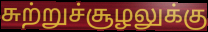
சுற்றுச்சூழலுக்கு